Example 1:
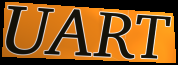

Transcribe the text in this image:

UART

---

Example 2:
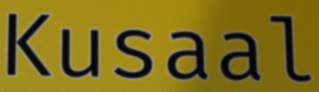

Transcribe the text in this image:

Kusaal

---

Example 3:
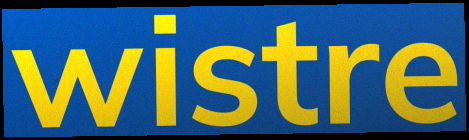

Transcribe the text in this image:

wistre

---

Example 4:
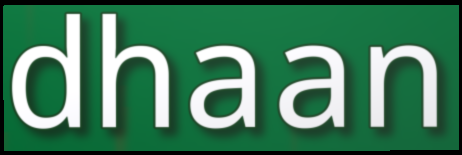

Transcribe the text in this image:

dhaan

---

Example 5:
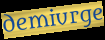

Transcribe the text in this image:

demiurge